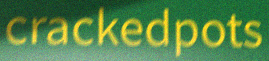
crackedpots